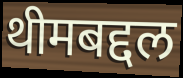
थीमबद्दल